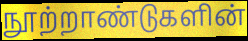
நூற்றாண்டுகளின்